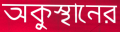
অকুস্থানের